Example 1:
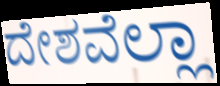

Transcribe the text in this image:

ದೇಶವೆಲ್ಲಾ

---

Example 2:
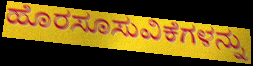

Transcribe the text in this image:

ಹೊರಸೂಸುವಿಕೆಗಳನ್ನು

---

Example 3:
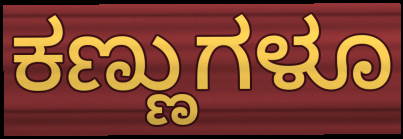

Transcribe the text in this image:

ಕಣ್ಣುಗಳೂ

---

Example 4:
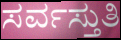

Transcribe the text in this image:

ಸರ್ವಸ್ತುತಿ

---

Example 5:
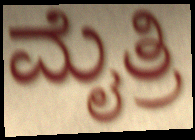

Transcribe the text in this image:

ಮೈತ್ರಿ